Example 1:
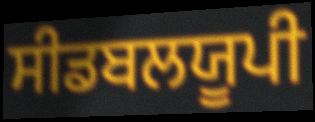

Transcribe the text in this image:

ਸੀਡਬਲਯੂਪੀ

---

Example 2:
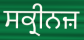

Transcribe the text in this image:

ਸਕ੍ਰੀਨਜ਼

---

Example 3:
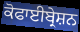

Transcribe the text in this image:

ਕੋਫਾਈਬ੍ਰੇਸ਼ਨ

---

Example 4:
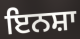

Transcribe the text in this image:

ਇਨਸ਼ਾ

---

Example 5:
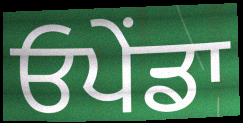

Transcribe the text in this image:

ਓਪੇਂਡਾ